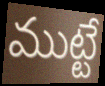
ముట్టే